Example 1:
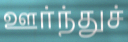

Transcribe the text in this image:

ஊர்ந்துச்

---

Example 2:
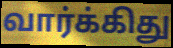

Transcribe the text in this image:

வார்க்கிது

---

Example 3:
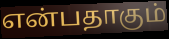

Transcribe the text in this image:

என்பதாகும்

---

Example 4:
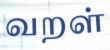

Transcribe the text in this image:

வறள்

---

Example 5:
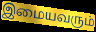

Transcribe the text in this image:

இமையவரும்